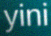
yini